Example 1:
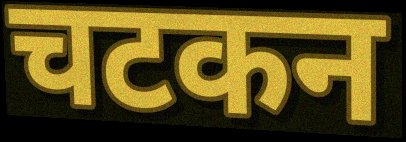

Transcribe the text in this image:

चटकन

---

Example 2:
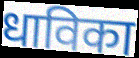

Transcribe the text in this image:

धाविका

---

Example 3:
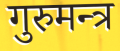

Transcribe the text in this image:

गुरुमन्त्र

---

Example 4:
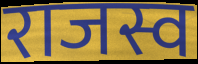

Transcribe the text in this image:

राजस्‍व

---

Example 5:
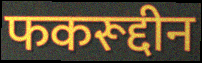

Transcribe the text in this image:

फकरूद्दीन